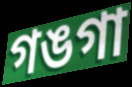
গঙগা